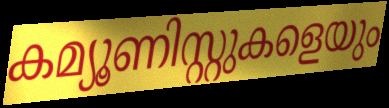
കമ്യൂണിസ്റ്റുകളെയും